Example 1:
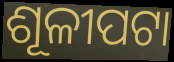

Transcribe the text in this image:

ଶୂଳୀପଟା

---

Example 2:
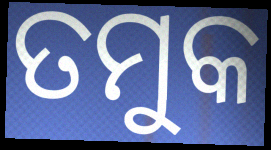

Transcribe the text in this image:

ତମୁକ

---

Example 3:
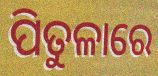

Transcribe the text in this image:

ପିତୁଳାରେ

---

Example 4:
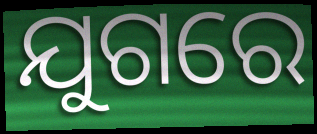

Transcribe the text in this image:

ଯୁଗରେ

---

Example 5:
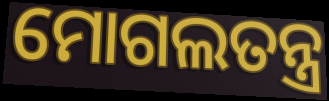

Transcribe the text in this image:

ମୋଗଲତନ୍ତ୍ର